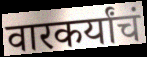
वारकर्यांचं